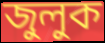
জুলুক